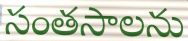
సంతసాలను